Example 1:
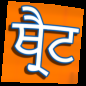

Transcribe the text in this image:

ਥ੍ਰੈਟ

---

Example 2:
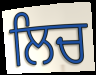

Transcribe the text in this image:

ਲਿਚ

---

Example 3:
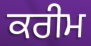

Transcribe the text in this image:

ਕਰੀਮ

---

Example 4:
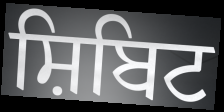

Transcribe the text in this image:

ਸ਼ਿਬਿਟ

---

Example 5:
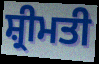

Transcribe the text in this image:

ਸ਼੍ਰੀਮਤੀ